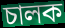
চালক